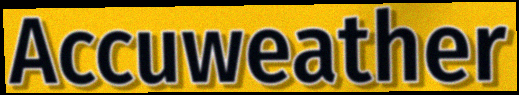
Accuweather